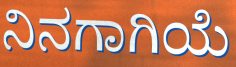
ನಿನಗಾಗಿಯೆ